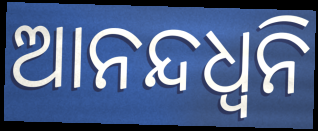
ଆନନ୍ଦଧ୍ଵନି